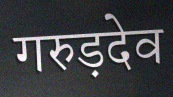
गरुड़देव